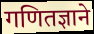
गणितज्ञाने